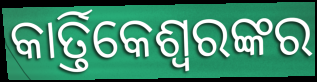
କାର୍ତ୍ତିକେଶ୍ୱରଙ୍କର